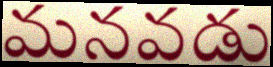
మనవడు